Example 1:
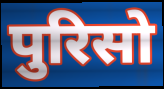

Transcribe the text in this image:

पुरिसो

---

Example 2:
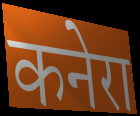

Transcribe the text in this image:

कनेरा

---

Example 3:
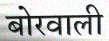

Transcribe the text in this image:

बोरवाली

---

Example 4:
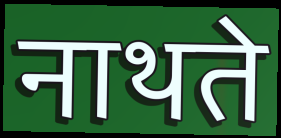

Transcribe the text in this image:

नाथते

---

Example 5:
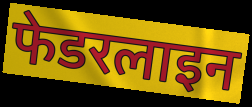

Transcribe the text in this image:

फेडरलाइन